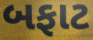
બફાટ